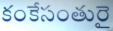
కంకేసంతురై